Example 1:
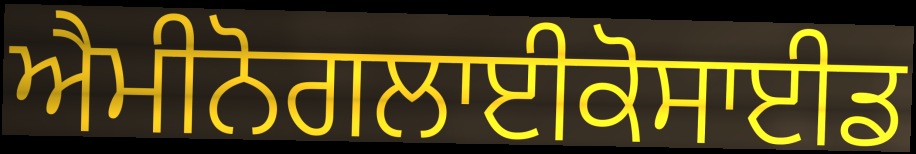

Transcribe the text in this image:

ਐਮੀਨੋਗਲਾਈਕੋਸਾਈਡ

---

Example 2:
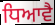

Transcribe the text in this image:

ਧਿਆਵੈ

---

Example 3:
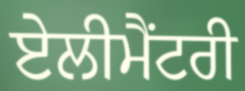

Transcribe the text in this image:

ਏਲੀਮੈਂਟਰੀ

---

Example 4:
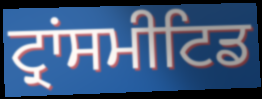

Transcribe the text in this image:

ਟ੍ਰਾਂਸਮੀਟਿਡ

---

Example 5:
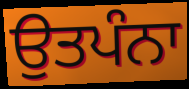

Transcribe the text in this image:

ਉਤਪੰਨਾ